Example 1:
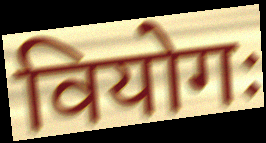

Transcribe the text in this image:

वियोगः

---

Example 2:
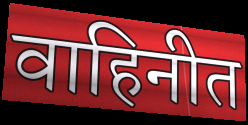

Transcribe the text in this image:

वाहिनीत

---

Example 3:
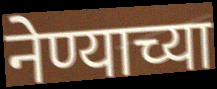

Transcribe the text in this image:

नेण्याच्या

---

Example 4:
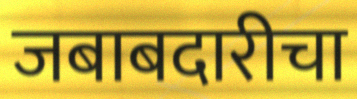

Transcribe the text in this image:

जबाबदारीचा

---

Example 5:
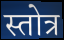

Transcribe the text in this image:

स्तोत्र